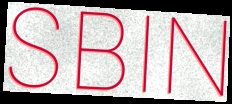
SBIN